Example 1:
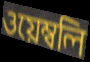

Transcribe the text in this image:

ওয়েম্বলি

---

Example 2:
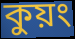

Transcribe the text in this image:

কুয়ং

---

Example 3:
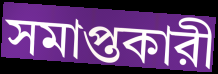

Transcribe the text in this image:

সমাপ্তকারী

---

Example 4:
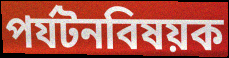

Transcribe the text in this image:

পর্যটনবিষয়ক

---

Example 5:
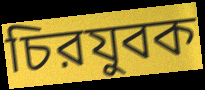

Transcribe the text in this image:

চিরযুবক